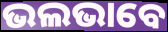
ଭଲଭାବେ